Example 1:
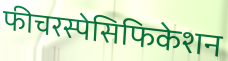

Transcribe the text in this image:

फीचरस्पेसिफिकेशन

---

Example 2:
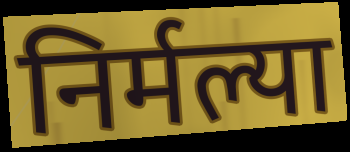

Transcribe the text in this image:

निर्मल्या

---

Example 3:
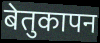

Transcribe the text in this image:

बेतुकापन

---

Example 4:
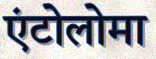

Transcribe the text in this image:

एंटोलोमा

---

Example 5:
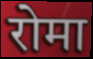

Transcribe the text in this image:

रोमा